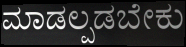
ಮಾಡಲ್ಪಡಬೇಕು